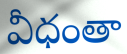
వీధంతా